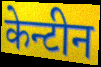
केन्टीन